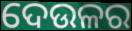
ଦେଉଳର